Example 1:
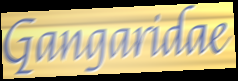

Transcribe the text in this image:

Gangaridae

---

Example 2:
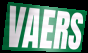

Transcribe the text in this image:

VAERS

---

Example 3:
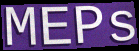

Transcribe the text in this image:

MEPs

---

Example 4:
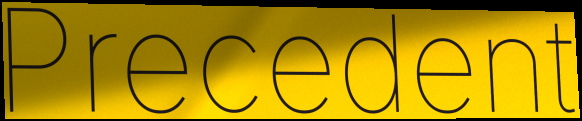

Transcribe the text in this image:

Precedent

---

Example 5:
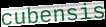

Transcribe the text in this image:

cubensis